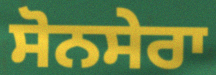
ਸੋਨਸੇਰਾ